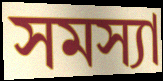
সমস্যা